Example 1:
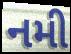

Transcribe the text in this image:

નમી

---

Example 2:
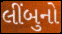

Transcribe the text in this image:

લીંબુનો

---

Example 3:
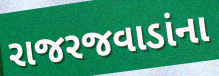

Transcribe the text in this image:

રાજરજવાડાંના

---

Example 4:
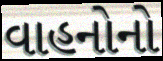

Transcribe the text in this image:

વાહનોનો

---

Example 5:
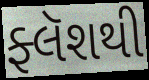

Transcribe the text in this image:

ફ્લૅશથી